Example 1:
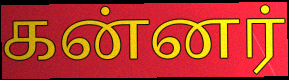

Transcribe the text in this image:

கன்னர்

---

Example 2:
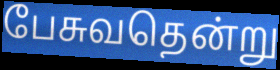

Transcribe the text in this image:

பேசுவதென்று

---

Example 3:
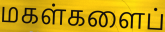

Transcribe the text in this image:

மகள்களைப்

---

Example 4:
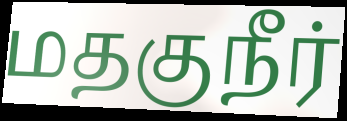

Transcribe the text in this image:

மதகுநீர்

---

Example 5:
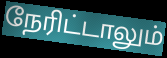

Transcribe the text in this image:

நேரிட்டாலும்